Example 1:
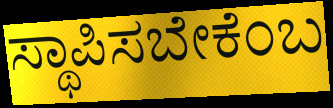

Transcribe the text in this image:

ಸ್ಥಾಪಿಸಬೇಕೆಂಬ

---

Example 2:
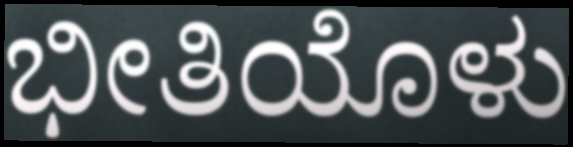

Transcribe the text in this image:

ಭೀತಿಯೊಳು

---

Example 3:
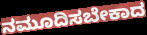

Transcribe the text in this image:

ನಮೂದಿಸಬೇಕಾದ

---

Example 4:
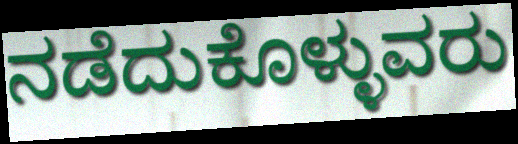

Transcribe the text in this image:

ನಡೆದುಕೊಳ್ಳುವರು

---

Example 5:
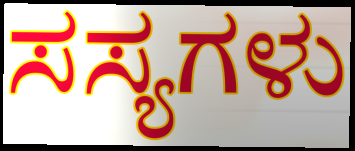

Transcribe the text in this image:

ಸಸ್ಯಗಳು